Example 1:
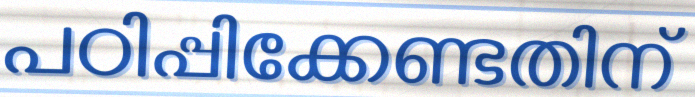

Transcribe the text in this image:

പഠിപ്പിക്കേണ്ടതിന്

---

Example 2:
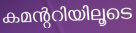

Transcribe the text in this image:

കമന്ററിയിലൂടെ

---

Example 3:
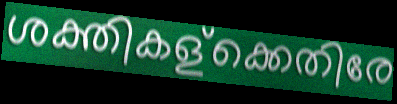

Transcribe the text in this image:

ശക്തികള്ക്കെതിരേ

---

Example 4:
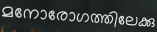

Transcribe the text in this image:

മനോരോഗത്തിലേക്കു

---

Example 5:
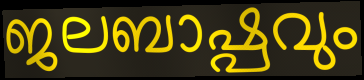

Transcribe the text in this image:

ജലബാഷ്പവും